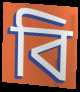
বি